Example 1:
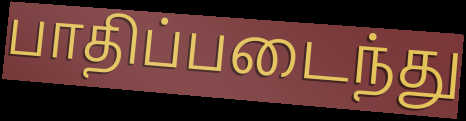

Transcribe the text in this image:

பாதிப்படைந்து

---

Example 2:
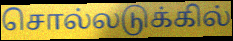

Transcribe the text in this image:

சொல்லடுக்கில்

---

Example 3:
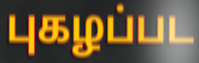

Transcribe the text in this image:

புகழப்பட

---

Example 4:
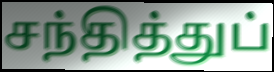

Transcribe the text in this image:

சந்தித்துப்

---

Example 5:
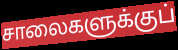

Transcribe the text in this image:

சாலைகளுக்குப்